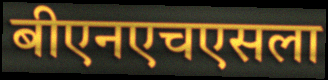
बीएनएचएसला